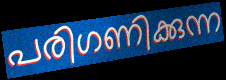
പരിഗണിക്കുന്ന